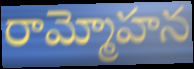
రామ్మోహన